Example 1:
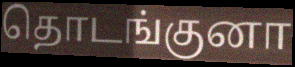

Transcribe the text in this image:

தொடங்குனா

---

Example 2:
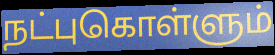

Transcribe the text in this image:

நட்புகொள்ளும்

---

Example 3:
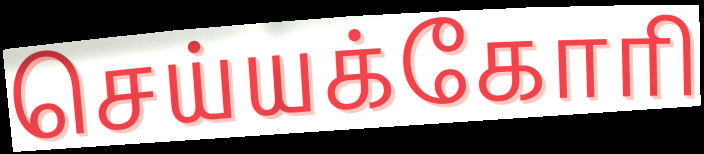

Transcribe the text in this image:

செய்யக்கோரி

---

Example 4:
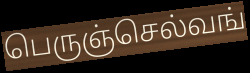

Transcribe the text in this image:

பெருஞ்செல்வங்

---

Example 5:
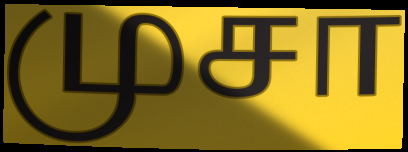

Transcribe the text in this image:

முசா